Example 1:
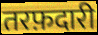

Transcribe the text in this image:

तरफ़दारी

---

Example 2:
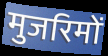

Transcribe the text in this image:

मुजरिमों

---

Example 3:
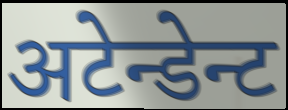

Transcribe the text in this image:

अटेन्डेन्ट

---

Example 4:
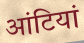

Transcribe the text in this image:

आंटियां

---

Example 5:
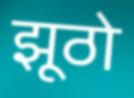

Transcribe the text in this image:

झूठो